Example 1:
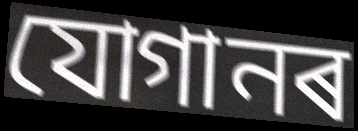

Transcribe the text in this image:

যোগানৰ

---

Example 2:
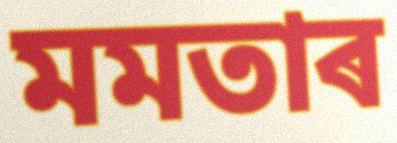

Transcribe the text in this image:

মমতাৰ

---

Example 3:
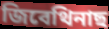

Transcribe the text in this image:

জিবেথিনাছ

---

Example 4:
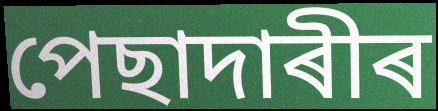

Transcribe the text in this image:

পেছাদাৰীৰ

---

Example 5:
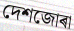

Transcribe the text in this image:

দেশজোৰা